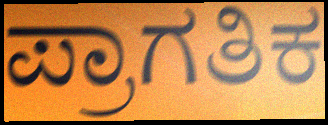
ಪ್ರಾಗತಿಕ